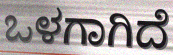
ಒಳಗಾಗಿದೆ